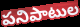
పనిపాటుల